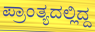
ಪ್ರಾಂತ್ಯದಲ್ಲಿದ್ದ